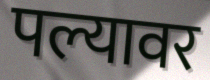
पल्यावर